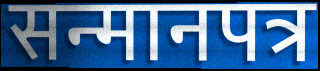
सन्मानपत्र